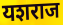
यशराज